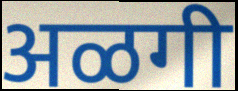
अळगी